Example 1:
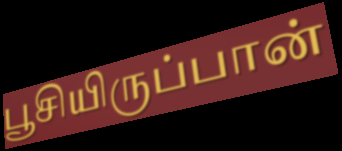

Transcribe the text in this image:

பூசியிருப்பான்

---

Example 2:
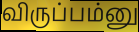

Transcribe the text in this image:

விருப்பம்னு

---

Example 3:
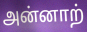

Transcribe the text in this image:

அன்னாற்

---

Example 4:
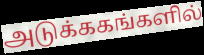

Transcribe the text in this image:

அடுக்ககங்களில்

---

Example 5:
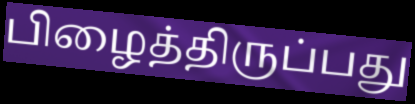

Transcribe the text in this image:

பிழைத்திருப்பது